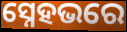
ସ୍ନେହଭରେ